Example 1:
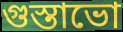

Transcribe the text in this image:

গুস্তাভো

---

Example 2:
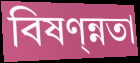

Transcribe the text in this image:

বিষণ্ন্নতা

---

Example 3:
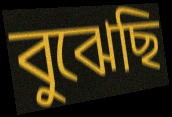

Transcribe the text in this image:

বুঝেছি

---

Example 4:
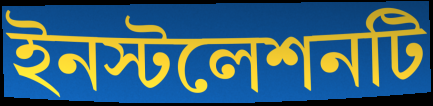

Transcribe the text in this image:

ইনস্টলেশনটি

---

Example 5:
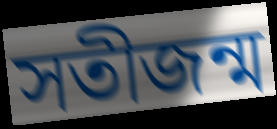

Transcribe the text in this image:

সতীজন্ম